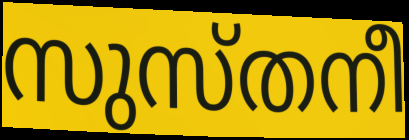
സുസ്തനീ